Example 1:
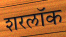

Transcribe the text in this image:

शरलॉक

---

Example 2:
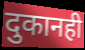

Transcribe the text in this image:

दुकानही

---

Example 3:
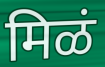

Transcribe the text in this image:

मिळं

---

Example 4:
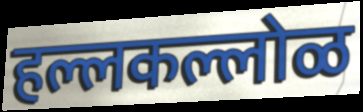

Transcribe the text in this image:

हल्लकल्लोळ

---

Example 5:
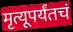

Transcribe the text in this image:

मृत्यूपर्यंतचं